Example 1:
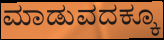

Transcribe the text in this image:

ಮಾಡುವದಕ್ಕೂ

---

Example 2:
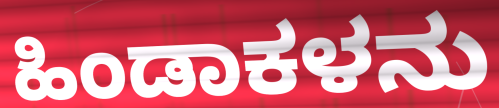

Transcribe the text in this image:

ಹಿಂಡಾಕಳನು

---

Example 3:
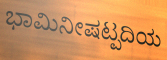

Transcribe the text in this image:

ಭಾಮಿನೀಷಟ್ಪದಿಯ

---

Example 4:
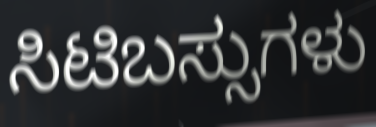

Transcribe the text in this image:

ಸಿಟಿಬಸ್ಸುಗಳು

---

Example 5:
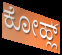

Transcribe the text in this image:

ಕೋಹ್ಲ್